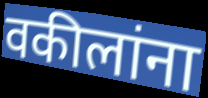
वकीलांना